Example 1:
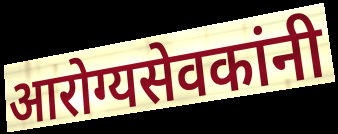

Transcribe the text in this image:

आरोग्यसेवकांनी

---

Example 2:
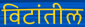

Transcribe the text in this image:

विटांतील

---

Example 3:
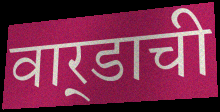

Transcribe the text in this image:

वार्डाची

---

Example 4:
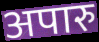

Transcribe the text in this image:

अपारु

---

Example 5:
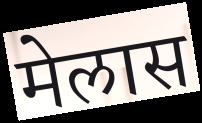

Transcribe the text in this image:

मेलास